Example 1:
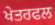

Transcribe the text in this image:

ਖੇਤਰਫਲ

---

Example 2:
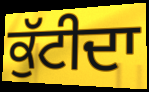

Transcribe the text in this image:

ਕੁੱਟੀਦਾ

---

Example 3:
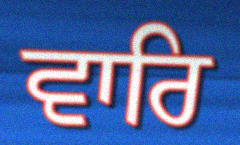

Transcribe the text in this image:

ਵਾਰਿ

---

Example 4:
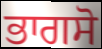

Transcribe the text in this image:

ਭਾਗਸੋ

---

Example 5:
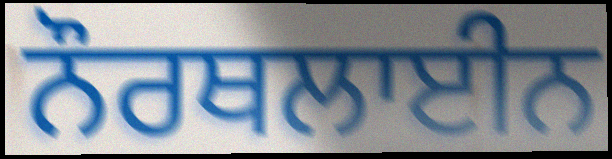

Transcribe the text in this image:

ਨੌਰਥਲਾਈਨ